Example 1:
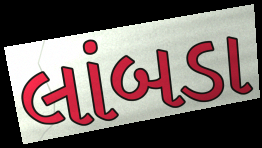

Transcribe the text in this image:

લાંબડા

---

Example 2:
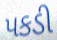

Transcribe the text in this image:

પકડી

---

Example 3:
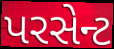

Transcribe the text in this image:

પરસેન્ટ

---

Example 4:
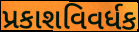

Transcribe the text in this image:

પ્રકાશવિવર્ધક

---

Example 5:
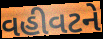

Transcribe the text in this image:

વહીવટને